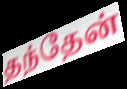
தந்தேன்